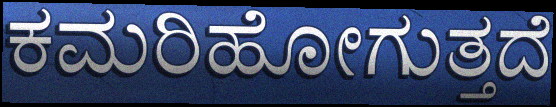
ಕಮರಿಹೋಗುತ್ತದೆ